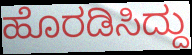
ಹೊರಡಿಸಿದ್ದು